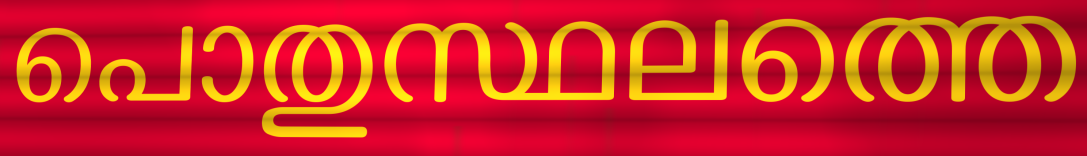
പൊതുസ്ഥലത്തെ